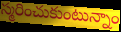
స్మరించుకుంటున్నాం